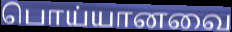
பொய்யானவை